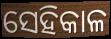
ସେହିକାଳ